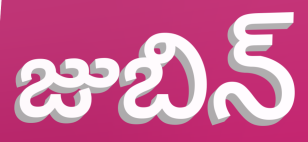
జుబిన్